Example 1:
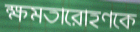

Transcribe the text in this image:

ক্ষমতারোহণকে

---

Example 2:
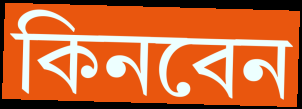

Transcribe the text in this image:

কিনবেন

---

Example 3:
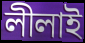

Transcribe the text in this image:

লীলাই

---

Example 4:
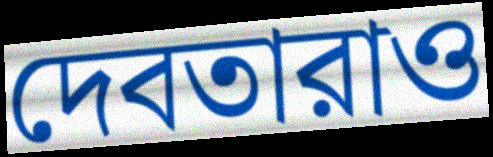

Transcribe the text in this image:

দেবতারাও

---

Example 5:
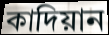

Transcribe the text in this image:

কাদিয়ান